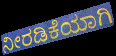
ನೀರಡಿಕೆಯಾಗಿ